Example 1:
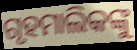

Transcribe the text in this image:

ଗୃହମାଲିକଙ୍କୁ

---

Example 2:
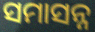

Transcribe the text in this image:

ସମାସନ୍ନ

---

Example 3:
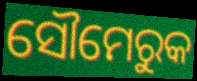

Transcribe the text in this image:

ସୌମେରୁକ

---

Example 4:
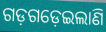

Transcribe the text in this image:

ଗଡ଼ଗଡ଼େଇଲାଣି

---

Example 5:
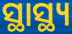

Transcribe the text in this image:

ସ୍ଥାସ୍ଥ୍ୟ